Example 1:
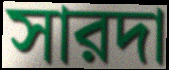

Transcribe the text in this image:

সারদা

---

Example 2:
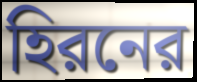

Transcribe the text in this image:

হিরনের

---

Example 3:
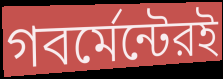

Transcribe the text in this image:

গবর্মেন্টেরই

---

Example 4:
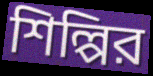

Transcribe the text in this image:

শিল্পির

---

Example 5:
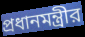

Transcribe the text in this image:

প্রধানমন্ত্রীর